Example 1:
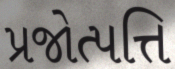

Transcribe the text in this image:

પ્રજોત્પત્તિ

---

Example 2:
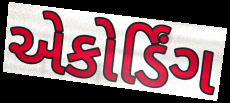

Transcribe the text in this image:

એકોર્ડિંગ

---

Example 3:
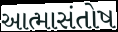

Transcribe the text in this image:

આત્માસંતોષ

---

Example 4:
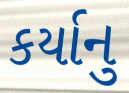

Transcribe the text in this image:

કર્યાનુ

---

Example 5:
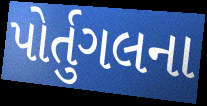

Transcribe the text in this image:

પોર્તુગલના